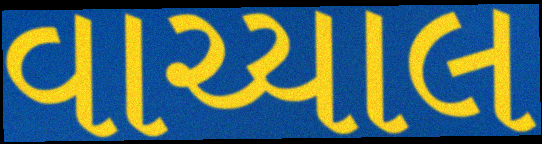
વાચ્યાલ